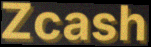
Zcash